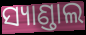
ସ୍ୟାଣ୍ଡାଲ